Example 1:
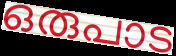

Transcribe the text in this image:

ഒരുപാട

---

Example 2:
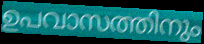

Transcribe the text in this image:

ഉപവാസത്തിനും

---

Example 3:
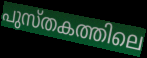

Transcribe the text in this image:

പുസ്തകത്തിലെ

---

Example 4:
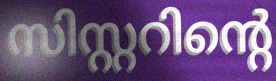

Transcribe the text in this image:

സിസ്റ്ററിന്റെ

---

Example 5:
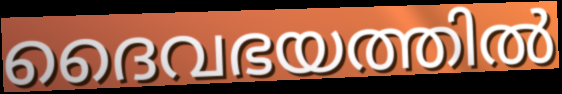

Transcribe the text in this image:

ദൈവഭയത്തിൽ